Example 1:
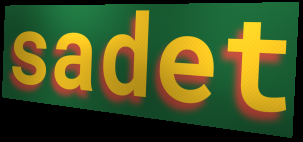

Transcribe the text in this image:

sadet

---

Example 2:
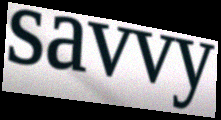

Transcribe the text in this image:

savvy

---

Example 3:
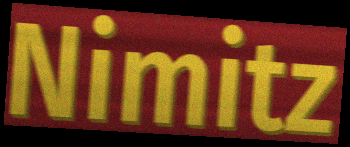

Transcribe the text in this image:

Nimitz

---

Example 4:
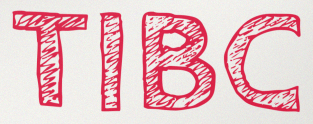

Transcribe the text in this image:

TIBC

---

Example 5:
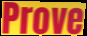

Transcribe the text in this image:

Prove